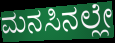
ಮನಸಿನಲ್ಲೇ